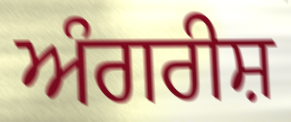
ਅੰਗਰੀਸ਼